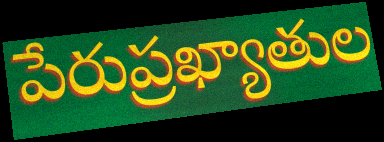
పేరుప్రఖ్యాతుల